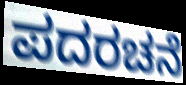
ಪದರಚನೆ